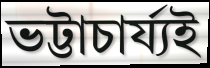
ভট্টাচাৰ্য্যই